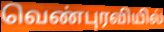
வெண்புரவியில்